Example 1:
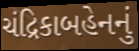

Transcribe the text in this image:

ચંદ્રિકાબહેનનું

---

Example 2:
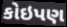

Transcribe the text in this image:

કોઇપણ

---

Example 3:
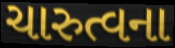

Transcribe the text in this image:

ચારુત્વના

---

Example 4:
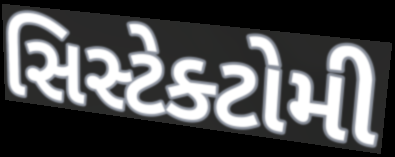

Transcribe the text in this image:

સિસ્ટેક્ટોમી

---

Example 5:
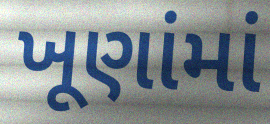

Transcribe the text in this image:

ખૂણાંમાં